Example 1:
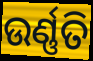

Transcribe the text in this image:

ଉର୍ଣ୍ଣତି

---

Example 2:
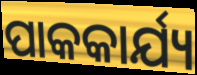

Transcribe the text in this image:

ପାକକାର୍ଯ୍ୟ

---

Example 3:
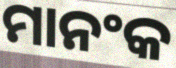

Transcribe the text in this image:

ମାନଂକ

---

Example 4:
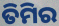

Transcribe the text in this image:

ତିମିର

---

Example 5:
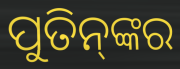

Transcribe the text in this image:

ପୁତିନ୍‌ଙ୍କର